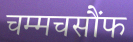
चम्मचसौंफ